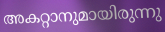
അകറ്റാനുമായിരുന്നു